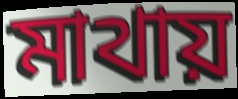
মাথায়